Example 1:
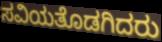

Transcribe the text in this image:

ಸವಿಯತೊಡಗಿದರು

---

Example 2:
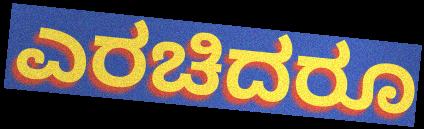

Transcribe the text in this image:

ಎರಚಿದರೂ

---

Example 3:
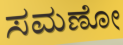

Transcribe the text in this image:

ಸಮಣೋ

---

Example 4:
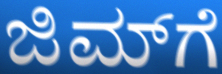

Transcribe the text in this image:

ಜಿಮ್‌ಗೆ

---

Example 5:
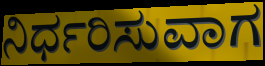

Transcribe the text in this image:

ನಿರ್ಧರಿಸುವಾಗ